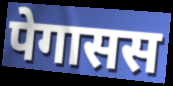
पेगासस